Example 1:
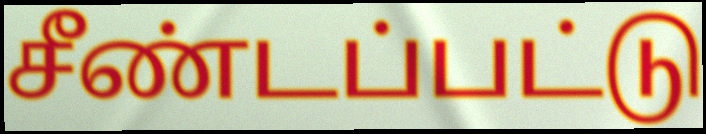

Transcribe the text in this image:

சீண்டப்பட்டு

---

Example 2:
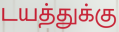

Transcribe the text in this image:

டயத்துக்கு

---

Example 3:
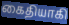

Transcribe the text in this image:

கைதியாகி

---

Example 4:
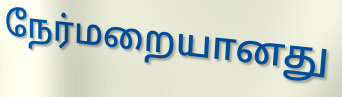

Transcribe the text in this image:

நேர்மறையானது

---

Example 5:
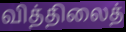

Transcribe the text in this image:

வித்திலைத்